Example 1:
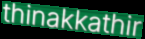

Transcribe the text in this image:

thinakkathir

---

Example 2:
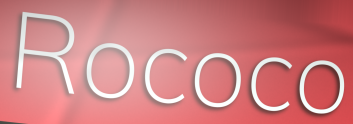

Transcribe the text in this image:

Rococo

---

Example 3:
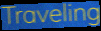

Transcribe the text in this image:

Traveling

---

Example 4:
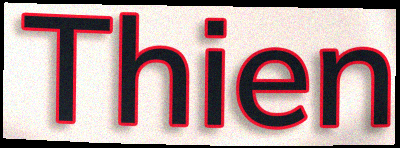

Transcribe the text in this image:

Thien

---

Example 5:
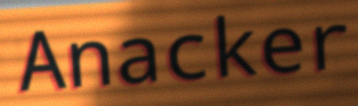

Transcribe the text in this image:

Anacker